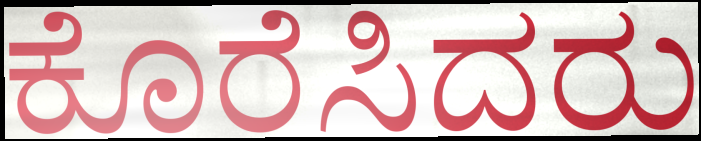
ಕೊರೆಸಿದರು